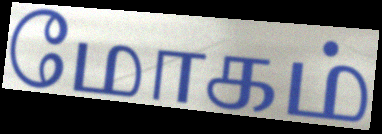
மோகம்